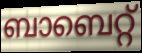
ബാബെറ്റ്